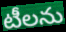
టీలను